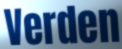
Verden